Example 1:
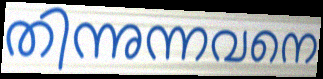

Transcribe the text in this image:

തിന്നുന്നവനെ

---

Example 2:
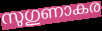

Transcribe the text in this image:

സുഗുണാകര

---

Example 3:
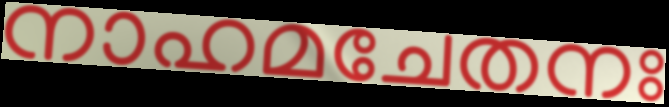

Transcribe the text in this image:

നാഹമചേതനഃ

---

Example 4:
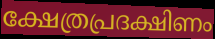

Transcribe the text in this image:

ക്ഷേത്രപ്രദക്ഷിണം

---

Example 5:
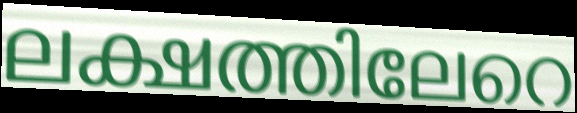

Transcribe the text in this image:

ലക്ഷത്തിലേറെ